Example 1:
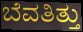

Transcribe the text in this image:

ಬೆವತಿತ್ತು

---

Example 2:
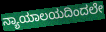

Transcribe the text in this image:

ನ್ಯಾಯಾಲಯದಿಂದಲೇ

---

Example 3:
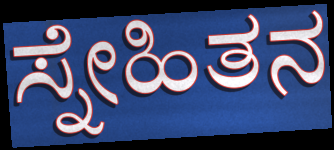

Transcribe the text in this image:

ಸ್ನೇಹಿತನ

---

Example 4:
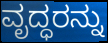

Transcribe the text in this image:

ವೃದ್ಧರನ್ನು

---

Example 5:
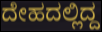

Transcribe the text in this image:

ದೇಹದಲ್ಲಿದ್ದ